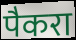
पैकरा